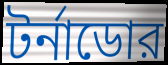
টর্নাডোর